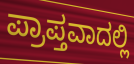
ಪ್ರಾಪ್ತವಾದಲ್ಲಿ